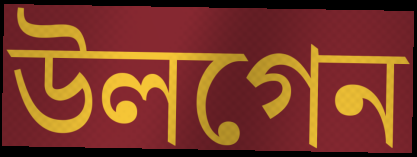
উলগেন